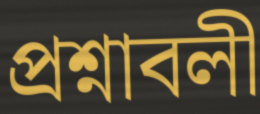
প্রশ্নাবলী